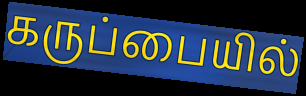
கருப்பையில்